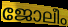
ജോലീം